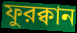
ফুরক্বান